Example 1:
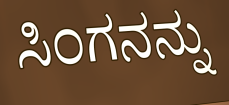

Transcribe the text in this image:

ಸಿಂಗನನ್ನು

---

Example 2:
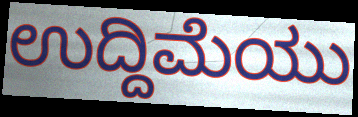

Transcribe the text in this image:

ಉದ್ದಿಮೆಯು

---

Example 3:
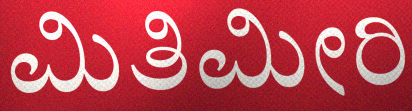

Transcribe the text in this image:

ಮಿತಿಮೀರಿ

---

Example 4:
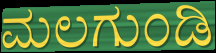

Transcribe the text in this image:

ಮಲಗುಂಡಿ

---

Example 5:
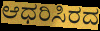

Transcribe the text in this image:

ಆಧರಿಸಿರದ